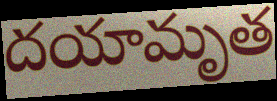
దయామృత